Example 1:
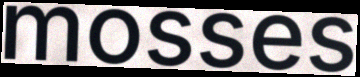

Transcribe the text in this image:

mosses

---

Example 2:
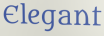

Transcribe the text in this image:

Elegant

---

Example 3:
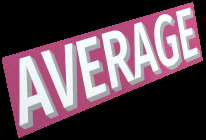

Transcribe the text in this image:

AVERAGE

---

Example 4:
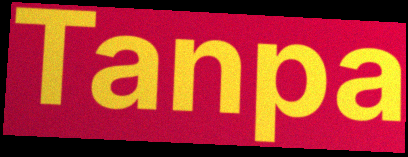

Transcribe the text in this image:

Tanpa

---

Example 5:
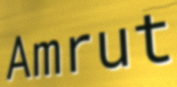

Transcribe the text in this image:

Amrut